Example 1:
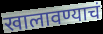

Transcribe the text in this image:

खालावण्याचं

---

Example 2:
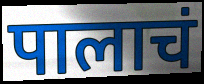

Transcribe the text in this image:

पालाचं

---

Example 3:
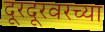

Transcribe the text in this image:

दूरदूरवरच्या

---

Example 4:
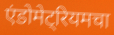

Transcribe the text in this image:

एंडोमेट्रियमचा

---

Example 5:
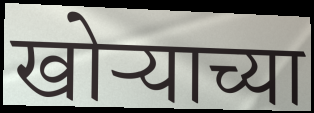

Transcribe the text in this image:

खोऱ्याच्या